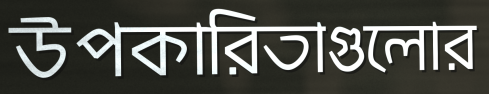
উপকারিতাগুলোর